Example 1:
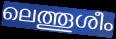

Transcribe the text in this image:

ലെത്തൂശീം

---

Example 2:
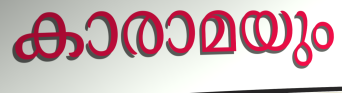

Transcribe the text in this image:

കാരാമയും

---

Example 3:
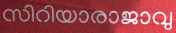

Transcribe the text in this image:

സിറിയാരാജാവു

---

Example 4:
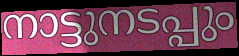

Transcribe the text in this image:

നാട്ടുനടപ്പും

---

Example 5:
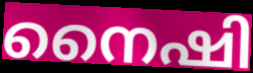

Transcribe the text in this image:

നൈഷി